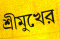
শ্রীমুখের